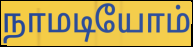
நாமடியோம்